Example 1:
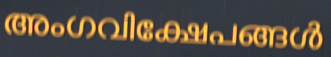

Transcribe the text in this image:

അംഗവിക്ഷേപങ്ങൾ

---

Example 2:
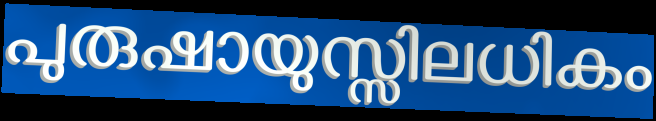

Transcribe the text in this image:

പുരുഷായുസ്സിലധികം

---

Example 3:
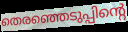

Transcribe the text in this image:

തെരഞ്ഞെടുപ്പിന്റെ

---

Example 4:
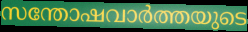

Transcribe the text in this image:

സന്തോഷവാർത്തയുടെ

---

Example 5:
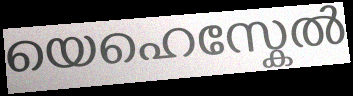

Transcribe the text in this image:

യെഹെസ്കേൽ